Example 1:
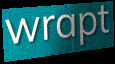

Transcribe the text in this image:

wrapt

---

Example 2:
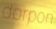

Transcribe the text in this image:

dorpon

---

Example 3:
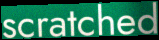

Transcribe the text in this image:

scratched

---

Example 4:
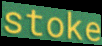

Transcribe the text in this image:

stoke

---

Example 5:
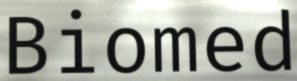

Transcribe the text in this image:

Biomed